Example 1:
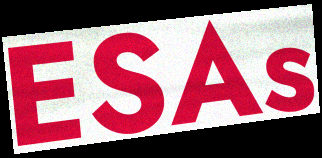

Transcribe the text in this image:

ESAs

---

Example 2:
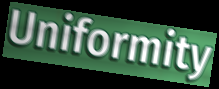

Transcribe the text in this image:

Uniformity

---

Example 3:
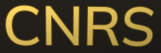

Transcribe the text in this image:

CNRS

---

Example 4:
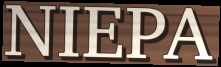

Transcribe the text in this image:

NIEPA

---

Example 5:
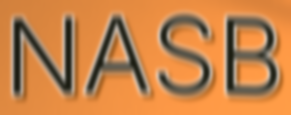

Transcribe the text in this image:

NASB